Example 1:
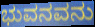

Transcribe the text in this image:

ಭುವನವನು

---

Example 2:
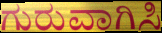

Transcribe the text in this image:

ಗುರುವಾಗಿಸಿ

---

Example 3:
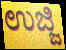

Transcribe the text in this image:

ಉಜ್ಜಿ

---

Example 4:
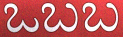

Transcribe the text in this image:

ಒಬಬ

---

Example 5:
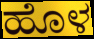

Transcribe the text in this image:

ಹೊಳ